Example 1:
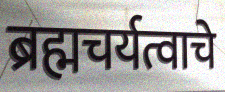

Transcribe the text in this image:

ब्रह्मचर्यत्वाचे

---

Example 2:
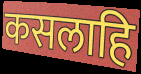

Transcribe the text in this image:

कसलाहि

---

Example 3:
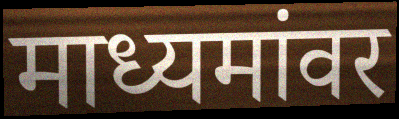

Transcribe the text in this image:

माध्यमांवर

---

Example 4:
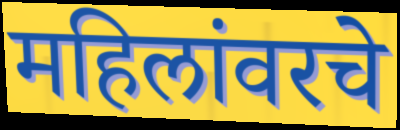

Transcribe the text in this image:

महिलांवरचे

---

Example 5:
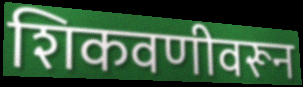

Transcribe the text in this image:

शिकवणीवरून